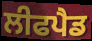
ਲੀਫਪੈਡ